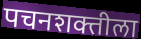
पचनशक्तीला